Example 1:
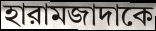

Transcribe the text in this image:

হারামজাদাকে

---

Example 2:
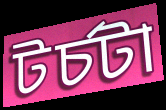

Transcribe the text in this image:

টর্চটা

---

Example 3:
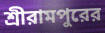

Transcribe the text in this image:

শ্রীরামপুরের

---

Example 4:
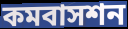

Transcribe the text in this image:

কমবাসশন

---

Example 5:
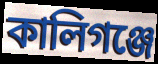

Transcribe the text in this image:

কালিগঞ্জে